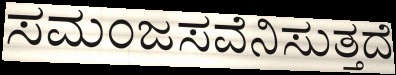
ಸಮಂಜಸವೆನಿಸುತ್ತದೆ